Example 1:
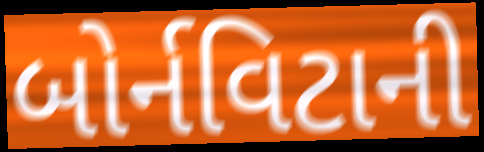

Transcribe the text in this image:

બોર્નવિટાની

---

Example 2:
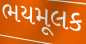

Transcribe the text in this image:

ભયમૂલક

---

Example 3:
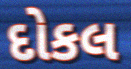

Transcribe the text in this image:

દોકલ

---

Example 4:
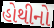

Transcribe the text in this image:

હોથીનો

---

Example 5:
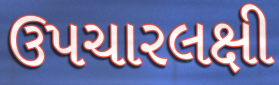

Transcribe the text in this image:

ઉપચારલક્ષી